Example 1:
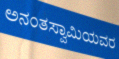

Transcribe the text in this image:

ಅನಂತಸ್ವಾಮಿಯವರ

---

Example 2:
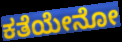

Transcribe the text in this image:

ಕತೆಯೇನೋ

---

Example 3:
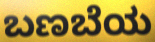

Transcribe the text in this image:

ಬಣಬೆಯ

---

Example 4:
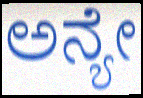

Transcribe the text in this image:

ಅನ್ಯೇ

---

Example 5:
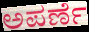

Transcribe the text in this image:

ಅಪರ್ಣೆ